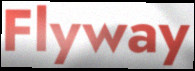
Flyway